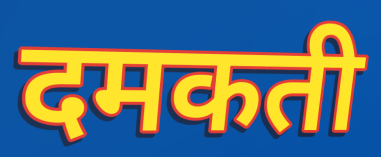
दमकती